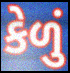
કેળું